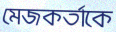
মেজকর্তাকে